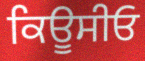
ਕਿਊਸੀਓ